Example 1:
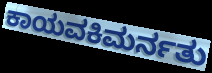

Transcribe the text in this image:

ಕಾಯವಕಿಮರ್ನತು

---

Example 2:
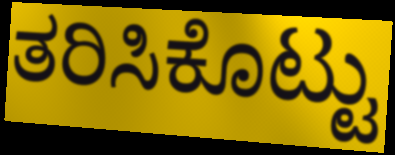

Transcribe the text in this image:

ತರಿಸಿಕೊಟ್ಟು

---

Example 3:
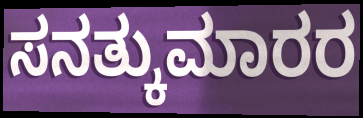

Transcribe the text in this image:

ಸನತ್ಕುಮಾರರ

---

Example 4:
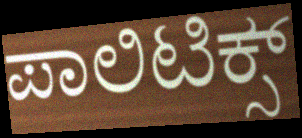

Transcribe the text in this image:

ಪಾಲಿಟಿಕ್ಸ್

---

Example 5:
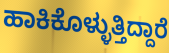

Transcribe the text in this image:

ಹಾಕಿಕೊಳ್ಳುತ್ತಿದ್ದಾರೆ